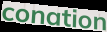
conation